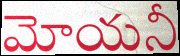
మోయనీ